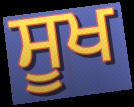
ਸੂਖ